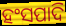
ହଂସପାଦି